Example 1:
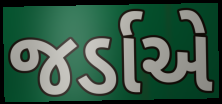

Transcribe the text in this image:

જર્ડાએ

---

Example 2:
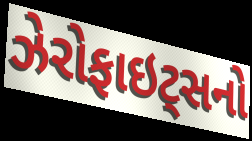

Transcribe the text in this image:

ઝેરોફાઇટ્સનો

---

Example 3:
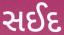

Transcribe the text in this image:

સઈદ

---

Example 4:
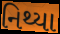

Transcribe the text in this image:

નિથ્યા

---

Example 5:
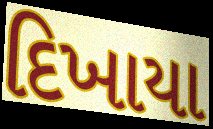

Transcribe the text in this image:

દિખાયા